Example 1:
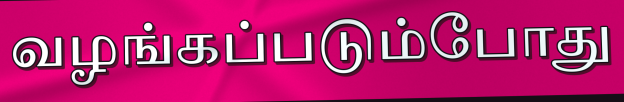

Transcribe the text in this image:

வழங்கப்படும்போது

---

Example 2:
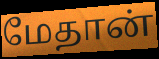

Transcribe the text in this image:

மேதான்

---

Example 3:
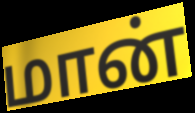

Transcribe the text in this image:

மான்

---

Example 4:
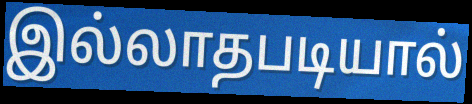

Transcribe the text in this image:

இல்லாதபடியால்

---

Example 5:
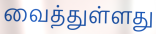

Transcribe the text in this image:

வைத்துள்ளது